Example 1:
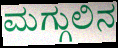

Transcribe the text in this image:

ಮಗ್ಗುಲಿನ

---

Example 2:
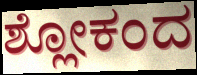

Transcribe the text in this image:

ಶ್ಲೋಕಂದ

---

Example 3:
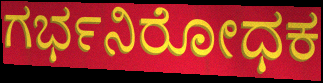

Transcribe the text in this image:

ಗರ್ಭನಿರೋಧಕ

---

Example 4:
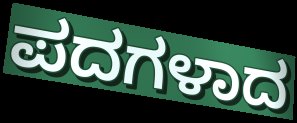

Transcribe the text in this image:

ಪದಗಳಾದ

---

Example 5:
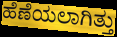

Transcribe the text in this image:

ಹೆಣೆಯಲಾಗಿತ್ತು